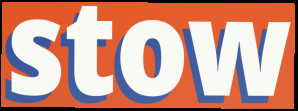
stow